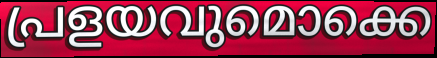
പ്രളയവുമൊക്കെ